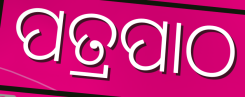
ପତ୍ରପାଠ